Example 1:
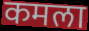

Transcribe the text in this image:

कमला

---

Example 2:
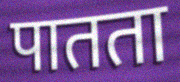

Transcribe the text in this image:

पातता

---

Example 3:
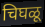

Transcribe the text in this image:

चिघळू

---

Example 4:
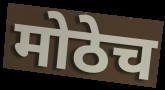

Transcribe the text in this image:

मोठेच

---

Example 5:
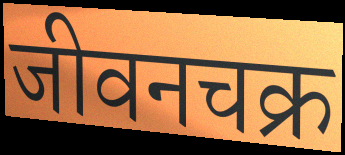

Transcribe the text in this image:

जीवनचक्र